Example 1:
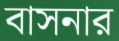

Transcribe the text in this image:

বাসনার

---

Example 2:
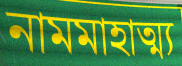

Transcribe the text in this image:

নামমাহাত্ম্য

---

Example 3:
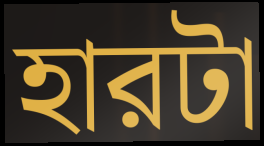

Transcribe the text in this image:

হারটা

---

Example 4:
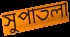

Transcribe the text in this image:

সুপাতলা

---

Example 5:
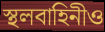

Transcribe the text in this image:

স্থলবাহিনীও